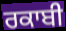
ਰਕਾਬੀ